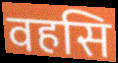
वहसि